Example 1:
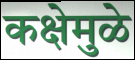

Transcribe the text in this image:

कक्षेमुळे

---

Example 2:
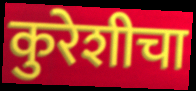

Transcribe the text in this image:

कुरेशीचा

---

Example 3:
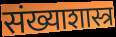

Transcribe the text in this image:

संख्याशास्त्र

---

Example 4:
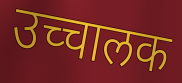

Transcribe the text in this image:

उच्चालक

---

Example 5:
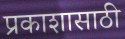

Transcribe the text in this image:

प्रकाशासाठी